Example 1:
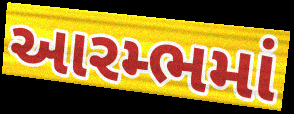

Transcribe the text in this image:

આરમ્ભમાં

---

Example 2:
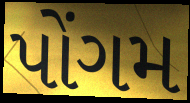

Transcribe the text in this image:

પોંગમ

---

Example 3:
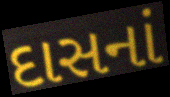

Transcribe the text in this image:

દાસનાં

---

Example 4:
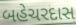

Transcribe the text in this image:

બહેચરદાસ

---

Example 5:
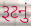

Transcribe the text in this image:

રૂટનું